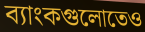
ব্যাংকগুলোতেও